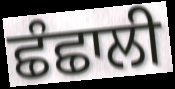
ਛੰਛਾਲੀ